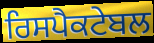
ਰਿਸਪੈਕਟੇਬਲ